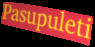
Pasupuleti